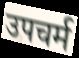
उपचर्म